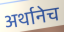
अर्थानेच